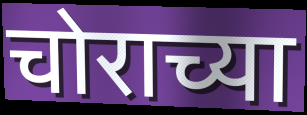
चोराच्या